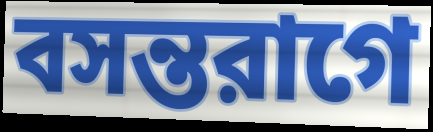
বসন্তরাগে